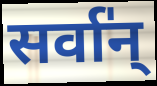
सर्वा॑न्